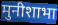
मुनीशाभा